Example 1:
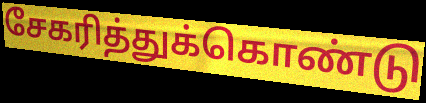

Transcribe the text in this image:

சேகரித்துக்கொண்டு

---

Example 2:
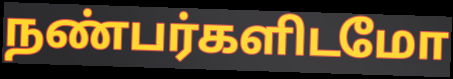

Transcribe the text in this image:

நண்பர்களிடமோ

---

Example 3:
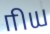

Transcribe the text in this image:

ரிய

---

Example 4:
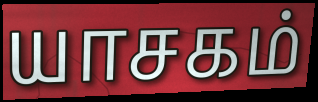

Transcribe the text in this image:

யாசகம்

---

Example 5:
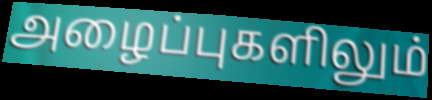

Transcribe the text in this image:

அழைப்புகளிலும்